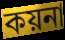
কয়না